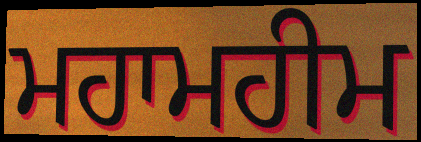
ਮਹਾਮਹੀਮ